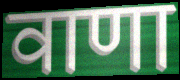
वाणा